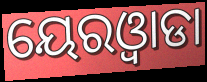
ୟେରଓ୍ୱାଡା